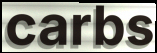
carbs